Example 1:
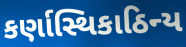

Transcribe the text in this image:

કર્ણાસ્થિકાઠિન્ય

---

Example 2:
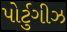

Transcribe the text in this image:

પોર્ટુગીઝ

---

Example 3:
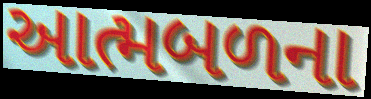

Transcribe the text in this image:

આત્મબળના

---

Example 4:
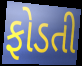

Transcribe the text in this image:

ફોડતી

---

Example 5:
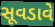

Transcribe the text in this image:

સૂવડાવે